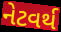
નેટવર્થ